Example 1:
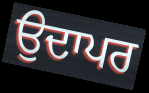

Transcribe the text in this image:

ਉਦਾਪਰ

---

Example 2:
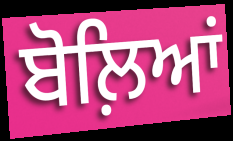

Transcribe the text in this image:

ਬੋਲ਼ਿਆਂ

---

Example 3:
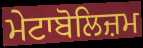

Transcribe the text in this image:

ਮੇਟਾਬੋਲਿਜ਼ਮ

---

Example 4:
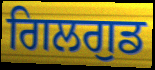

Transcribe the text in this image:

ਗਿਲਗੁਡ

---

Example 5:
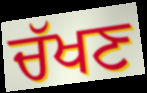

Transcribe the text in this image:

ਚੱਖਣ